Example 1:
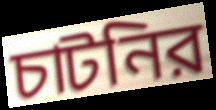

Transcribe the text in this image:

চাটনির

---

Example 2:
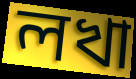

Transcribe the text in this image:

লখা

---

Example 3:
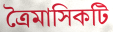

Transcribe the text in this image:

ত্রৈমাসিকটি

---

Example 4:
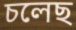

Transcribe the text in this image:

চলেছ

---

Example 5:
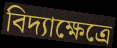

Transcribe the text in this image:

বিদ্যাক্ষেত্রে